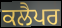
ਕਲੈਪਰ